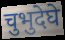
चुभुदेघे